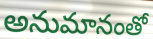
అనుమానంతో